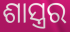
ଶାସ୍ତ୍ରର